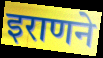
इराणने